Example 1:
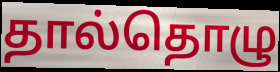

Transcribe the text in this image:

தால்தொழு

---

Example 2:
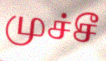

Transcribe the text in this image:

முச்சீ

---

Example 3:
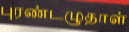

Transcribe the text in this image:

புரண்டழுதாள்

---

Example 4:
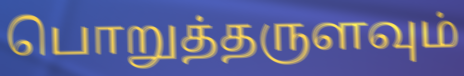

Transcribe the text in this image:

பொறுத்தருளவும்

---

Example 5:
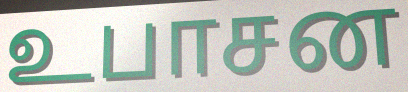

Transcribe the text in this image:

உபாசன